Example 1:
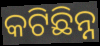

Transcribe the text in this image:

କଟିଛିନ୍ନ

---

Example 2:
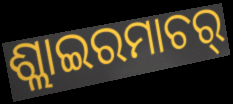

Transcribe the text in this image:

ଶ୍ଲାଇରମାଚର୍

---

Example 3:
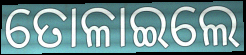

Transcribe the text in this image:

ତୋଳାଇଲେ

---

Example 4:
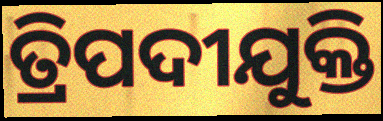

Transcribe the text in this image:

ତ୍ରିପଦୀଯୁକ୍ତି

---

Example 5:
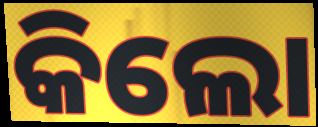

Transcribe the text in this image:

କିଲୋ